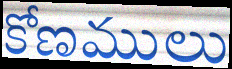
కోణములు